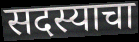
सदस्याचा